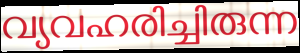
വ്യവഹരിച്ചിരുന്ന